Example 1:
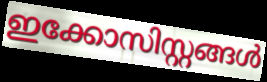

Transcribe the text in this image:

ഇക്കോസിസ്റ്റങ്ങൾ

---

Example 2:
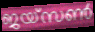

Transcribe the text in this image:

ജയ്സൺ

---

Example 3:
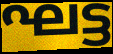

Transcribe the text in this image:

ഘട്ട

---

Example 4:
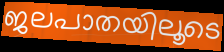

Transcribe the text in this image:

ജലപാതയിലൂടെ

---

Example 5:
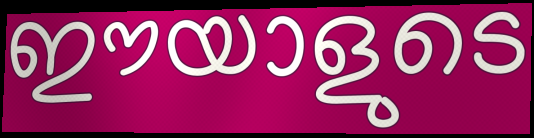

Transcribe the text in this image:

ഈയാളുടെ